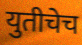
युतीचेच